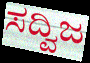
ಸದ್ವಿಜ